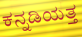
ಕನ್ನಡಿಯತ್ತ